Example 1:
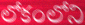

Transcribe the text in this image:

లోకంలోని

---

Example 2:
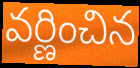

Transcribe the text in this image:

వర్ణించిన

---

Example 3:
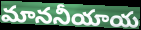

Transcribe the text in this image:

మాననీయాయ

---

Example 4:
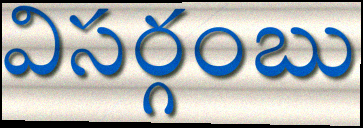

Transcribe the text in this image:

విసర్గంబు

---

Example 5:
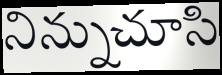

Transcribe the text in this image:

నిన్నుచూసి